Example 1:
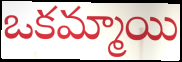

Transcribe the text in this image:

ఒకమ్మాయి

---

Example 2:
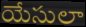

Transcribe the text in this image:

యేసులా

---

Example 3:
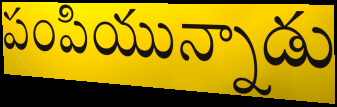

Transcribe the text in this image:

పంపియున్నాడు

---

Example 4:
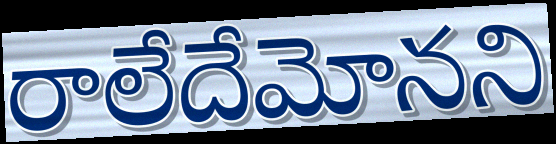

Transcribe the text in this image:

రాలేదేమోనని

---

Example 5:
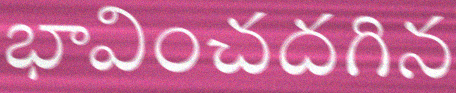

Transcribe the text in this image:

భావించదగిన